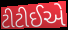
ટીટીઈએ